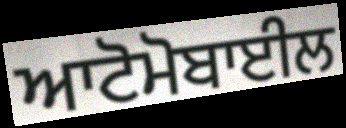
ਆਟੋਮੋਬਾਈਲ